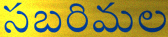
సబరిమల